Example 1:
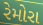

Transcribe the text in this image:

રેમોરા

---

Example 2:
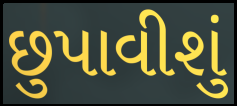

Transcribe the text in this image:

છુપાવીશું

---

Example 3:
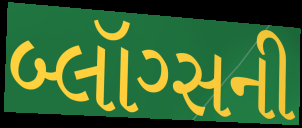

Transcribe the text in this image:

બ્લૉગ્સની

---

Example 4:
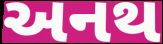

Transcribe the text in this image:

અનથ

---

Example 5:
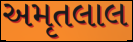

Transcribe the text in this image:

અમૃતલાલ